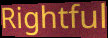
Rightful